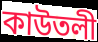
কাউতলী